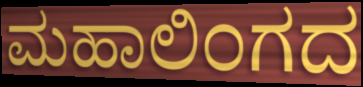
ಮಹಾಲಿಂಗದ